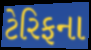
ટેરિફના